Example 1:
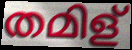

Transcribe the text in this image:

തമിള്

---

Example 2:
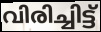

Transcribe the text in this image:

വിരിച്ചിട്ട്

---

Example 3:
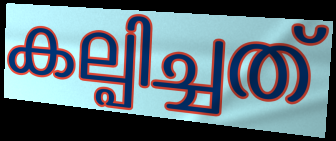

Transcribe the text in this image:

കല്പിച്ചത്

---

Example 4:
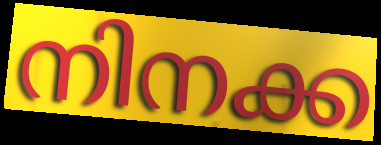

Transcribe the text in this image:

നിനക്ക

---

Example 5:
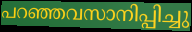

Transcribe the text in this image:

പറഞ്ഞവസാനിപ്പിച്ചു